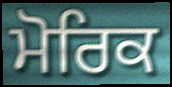
ਮੋਰਿਕ